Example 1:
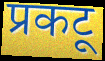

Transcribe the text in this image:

प्रकटू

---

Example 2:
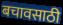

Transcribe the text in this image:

बचावसाठी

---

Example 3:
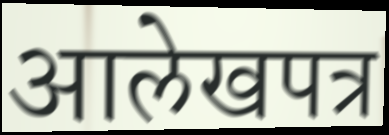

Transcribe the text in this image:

आलेखपत्र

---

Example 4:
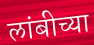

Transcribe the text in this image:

लांबीच्या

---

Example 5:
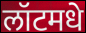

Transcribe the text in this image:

लॉटमधे